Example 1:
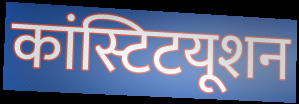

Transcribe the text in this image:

कांस्टिटयूशन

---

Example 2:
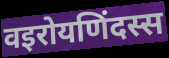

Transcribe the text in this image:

वइरोयणिंदस्स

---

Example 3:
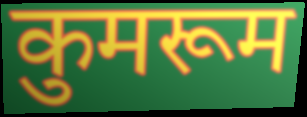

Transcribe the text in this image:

कुमरूम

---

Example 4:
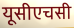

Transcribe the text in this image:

यूसीएचसी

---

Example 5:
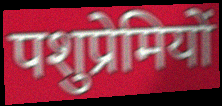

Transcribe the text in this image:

पशुप्रेमियों